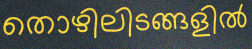
തൊഴിലിടങ്ങളിൽ